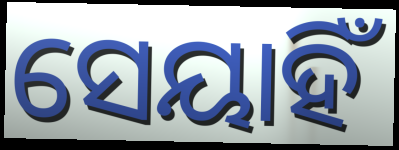
ସେୟାହିଁ